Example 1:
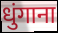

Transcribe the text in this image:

धुंगाना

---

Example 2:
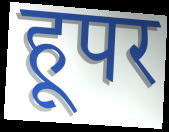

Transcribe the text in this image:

हूपर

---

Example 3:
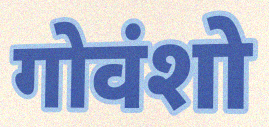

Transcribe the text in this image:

गोवंशो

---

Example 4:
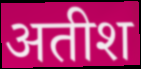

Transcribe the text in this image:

अतीश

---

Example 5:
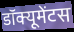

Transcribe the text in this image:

डॉक्यूमेंटस